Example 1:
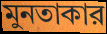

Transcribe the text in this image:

মুনতাকার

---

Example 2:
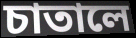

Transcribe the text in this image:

চাতালে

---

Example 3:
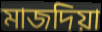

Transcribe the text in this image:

মাজদিয়া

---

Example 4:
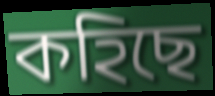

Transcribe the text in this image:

কহিছে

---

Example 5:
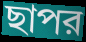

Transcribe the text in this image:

ছাপর